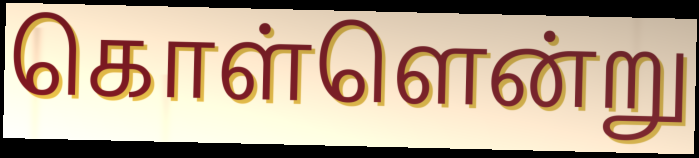
கொள்ளென்று